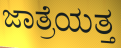
ಜಾತ್ರೆಯತ್ತ